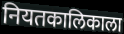
नियतकालिकाला